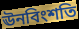
ঊনবিংশতি